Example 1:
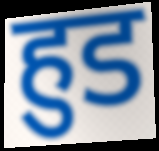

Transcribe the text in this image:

हुड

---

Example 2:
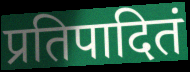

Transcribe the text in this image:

प्रतिपादितं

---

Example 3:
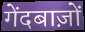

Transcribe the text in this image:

गेंदबाज़ों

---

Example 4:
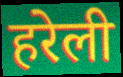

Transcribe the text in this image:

हरेली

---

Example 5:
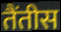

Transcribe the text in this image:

तैंतीस